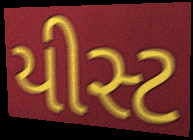
યીસ્ટ